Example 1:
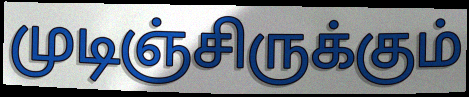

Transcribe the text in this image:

முடிஞ்சிருக்கும்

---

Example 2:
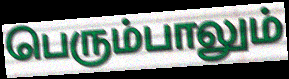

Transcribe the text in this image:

பெரும்பாலும்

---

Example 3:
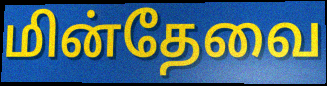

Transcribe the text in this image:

மின்தேவை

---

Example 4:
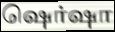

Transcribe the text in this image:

ஷெர்ஷா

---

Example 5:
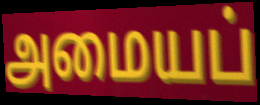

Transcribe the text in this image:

அமையப்